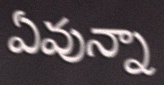
ఏవున్నా